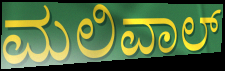
ಮಲಿವಾಲ್